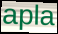
apla